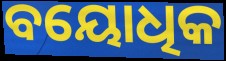
ବୟୋଧିକ